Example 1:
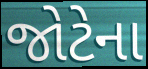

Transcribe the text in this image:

જોટેના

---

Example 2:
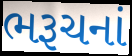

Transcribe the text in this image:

ભરૂચનાં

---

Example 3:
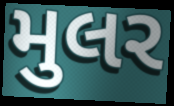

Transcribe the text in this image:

મુલર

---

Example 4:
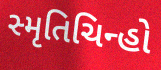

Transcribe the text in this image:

સ્મૃતિચિન્હો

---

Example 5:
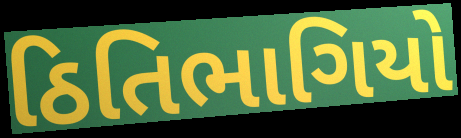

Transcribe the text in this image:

ઠિતિભાગિયો